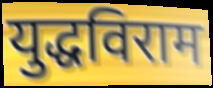
युद्धविराम